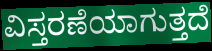
ವಿಸ್ತರಣೆಯಾಗುತ್ತದೆ